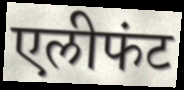
एलीफंट